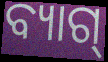
ବ୍ୟାଗ୍